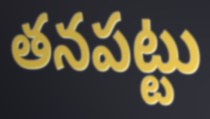
తనపట్టు